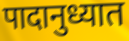
पादानुध्यात